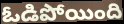
ఓడిపోయింది